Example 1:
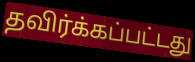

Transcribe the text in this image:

தவிர்க்கப்பட்டது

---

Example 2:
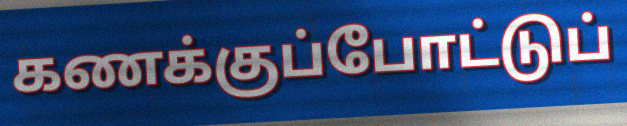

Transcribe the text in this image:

கணக்குப்போட்டுப்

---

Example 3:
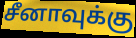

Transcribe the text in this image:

சீனாவுக்கு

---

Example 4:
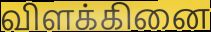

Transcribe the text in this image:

விளக்கினை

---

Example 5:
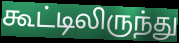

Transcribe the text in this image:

கூட்டிலிருந்து